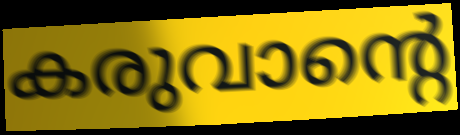
കരുവാന്റെ